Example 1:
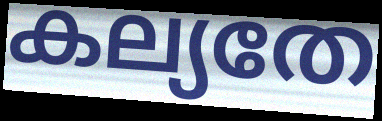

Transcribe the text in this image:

കല്യതേ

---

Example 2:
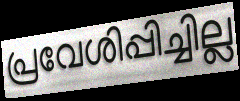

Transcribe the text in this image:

പ്രവേശിപ്പിച്ചില്ല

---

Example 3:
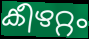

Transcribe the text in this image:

കീഴറ്റം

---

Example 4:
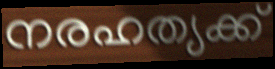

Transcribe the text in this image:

നരഹത്യക്ക്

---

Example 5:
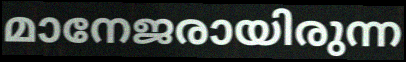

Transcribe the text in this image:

മാനേജരായിരുന്ന